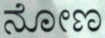
ನೋಣ